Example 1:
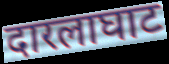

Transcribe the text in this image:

दारलाघाट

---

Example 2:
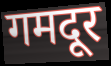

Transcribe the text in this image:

गमदूर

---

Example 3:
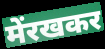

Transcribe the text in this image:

मेंरखकर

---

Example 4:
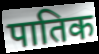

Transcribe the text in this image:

पातिक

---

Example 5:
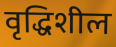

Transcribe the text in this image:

वृद्धिशील